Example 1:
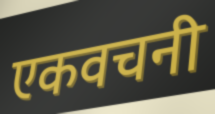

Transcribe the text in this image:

एकवचनी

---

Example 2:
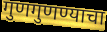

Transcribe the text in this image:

गुणगुणण्याचा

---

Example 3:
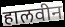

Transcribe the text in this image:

हालवीन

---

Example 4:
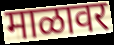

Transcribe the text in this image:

माळावर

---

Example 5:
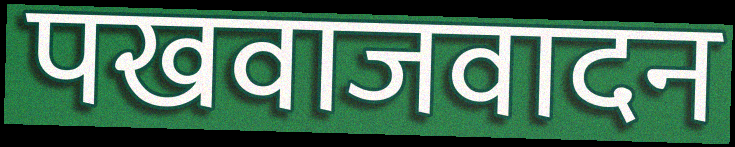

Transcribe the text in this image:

पखवाजवादन